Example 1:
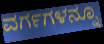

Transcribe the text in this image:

ವರ್ಗಗಳನ್ನೂ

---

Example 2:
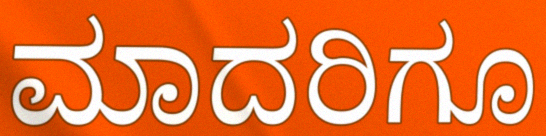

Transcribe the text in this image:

ಮಾದರಿಗೂ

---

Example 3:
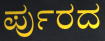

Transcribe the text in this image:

ರ್ಪುರದ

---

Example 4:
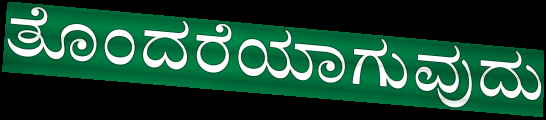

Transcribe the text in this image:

ತೊಂದರೆಯಾಗುವುದು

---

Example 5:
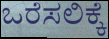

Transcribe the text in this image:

ಒರೆಸಲಿಕ್ಕೆ